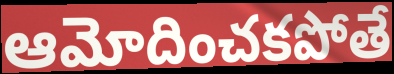
ఆమోదించకపోతే